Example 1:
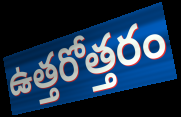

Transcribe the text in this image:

ఉత్తరోత్తరం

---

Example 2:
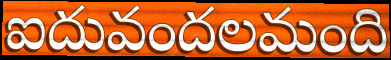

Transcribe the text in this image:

ఐదువందలమంది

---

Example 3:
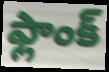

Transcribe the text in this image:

ఫ్లాంక్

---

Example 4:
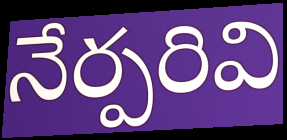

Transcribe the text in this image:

నేర్పరివి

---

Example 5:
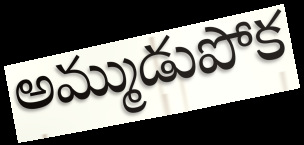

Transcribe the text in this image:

అమ్ముడుపోక